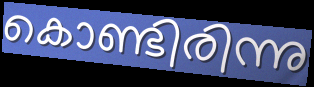
കൊണ്ടിരിന്നു